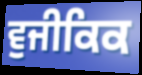
ਵੁਜੀਕਿਕ